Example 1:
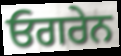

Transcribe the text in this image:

ਓਗਰੇਨ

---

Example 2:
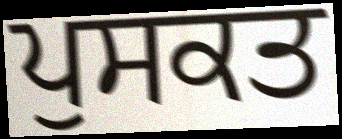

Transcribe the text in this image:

ਪੁਸਕਤ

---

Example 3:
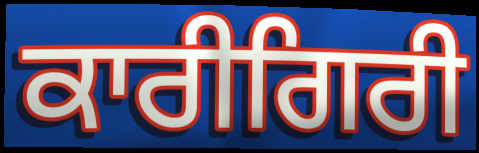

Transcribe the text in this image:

ਕਾਰੀਗਿਰੀ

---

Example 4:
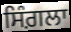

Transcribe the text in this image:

ਸਿੰਗ਼ਲਾ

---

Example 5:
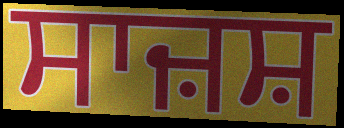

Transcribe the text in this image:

ਸਾਜ਼ਸ਼